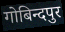
गोबिन्दपुर